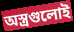
অস্ত্রগুলোই